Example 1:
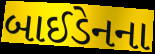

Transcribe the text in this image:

બાઈડેનના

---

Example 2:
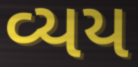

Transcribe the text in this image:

વ્યય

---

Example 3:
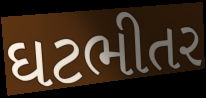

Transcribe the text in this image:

ઘટભીતર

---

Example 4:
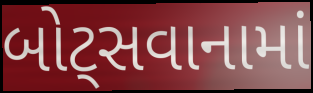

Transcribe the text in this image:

બોટ્સવાનામાં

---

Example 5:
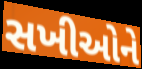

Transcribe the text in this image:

સખીઓને